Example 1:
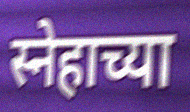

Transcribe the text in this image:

स्नेहाच्या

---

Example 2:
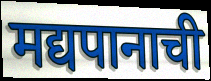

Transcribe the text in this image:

मद्यपानाची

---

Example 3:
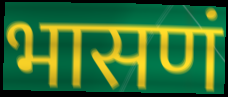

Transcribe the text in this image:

भासणं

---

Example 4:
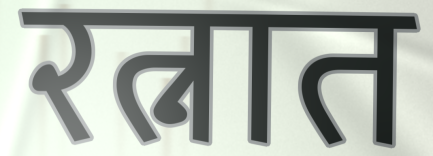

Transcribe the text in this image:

रत्नात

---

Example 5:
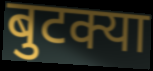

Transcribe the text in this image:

बुटक्या